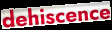
dehiscence